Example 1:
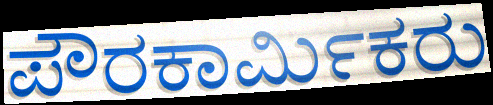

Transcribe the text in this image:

ಪೌರಕಾರ್ಮಿಕರು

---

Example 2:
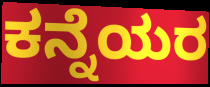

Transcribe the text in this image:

ಕನ್ನೆಯರ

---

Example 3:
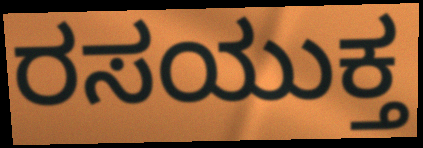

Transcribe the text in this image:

ರಸಯುಕ್ತ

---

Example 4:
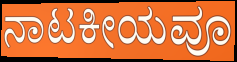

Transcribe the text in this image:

ನಾಟಕೀಯವೂ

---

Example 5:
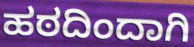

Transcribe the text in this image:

ಹಠದಿಂದಾಗಿ